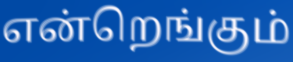
என்றெங்கும்